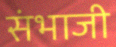
संभाजी